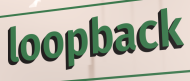
loopback